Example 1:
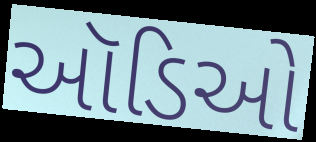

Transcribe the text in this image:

ઑડિઓ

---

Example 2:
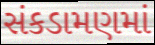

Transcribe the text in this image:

સંકડામણમાં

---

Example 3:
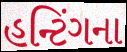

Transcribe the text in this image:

હન્ટિંગના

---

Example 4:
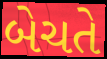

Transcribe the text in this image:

બેચતે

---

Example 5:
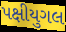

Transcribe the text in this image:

પક્ષીયુગલ